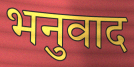
भनुवाद